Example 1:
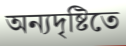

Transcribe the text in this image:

অন্যদৃষ্টিতে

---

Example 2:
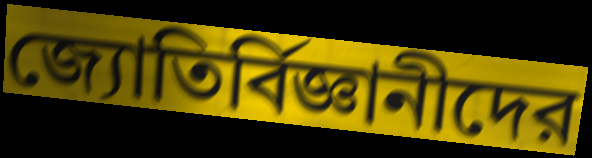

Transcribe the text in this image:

জ্যোতির্বিজ্ঞানীদের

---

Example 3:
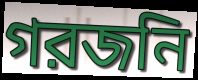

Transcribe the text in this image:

গরজনি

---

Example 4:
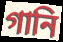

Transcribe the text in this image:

গানি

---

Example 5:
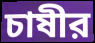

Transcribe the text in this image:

চাষীর